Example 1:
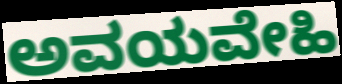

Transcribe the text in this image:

ಅವಯವೇಹಿ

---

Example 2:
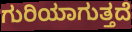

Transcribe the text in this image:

ಗುರಿಯಾಗುತ್ತದೆ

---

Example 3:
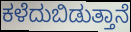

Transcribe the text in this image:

ಕಳೆದುಬಿಡುತ್ತಾನೆ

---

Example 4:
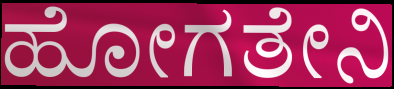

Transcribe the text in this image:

ಹೋಗತೇನಿ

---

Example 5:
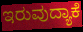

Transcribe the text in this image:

ಇರುವುದ್ಯಾಕೆ